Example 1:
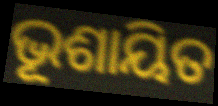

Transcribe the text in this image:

ଭୂଶାୟିତ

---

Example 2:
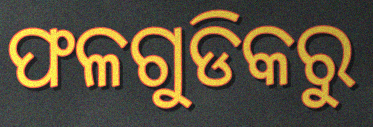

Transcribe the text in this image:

ଫଳଗୁଡିକରୁ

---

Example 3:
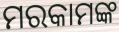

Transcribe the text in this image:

ମରକାମଙ୍କ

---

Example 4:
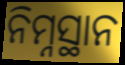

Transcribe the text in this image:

ନିମ୍ନସ୍ଥାନ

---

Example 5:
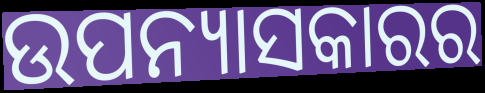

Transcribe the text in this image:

ଉପନ୍ୟାସକାରର